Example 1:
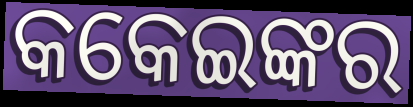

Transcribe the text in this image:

କକେଇଙ୍କର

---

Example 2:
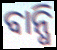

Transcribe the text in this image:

ବାନ୍ଧି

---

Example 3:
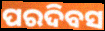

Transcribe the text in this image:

ପରଦିବସ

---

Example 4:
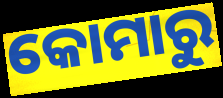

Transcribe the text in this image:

କୋମାରୁ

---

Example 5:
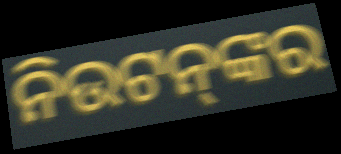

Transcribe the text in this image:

ନିଉଟନ୍‌ଙ୍କର